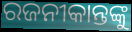
ରଜନୀକାନ୍ତଙ୍କୁ